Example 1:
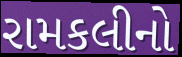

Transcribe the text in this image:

રામકલીનો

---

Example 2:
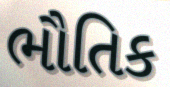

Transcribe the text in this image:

ભૌતિક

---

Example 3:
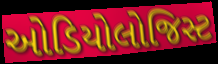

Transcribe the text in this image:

ઓડિયોલોજિસ્ટ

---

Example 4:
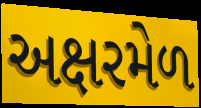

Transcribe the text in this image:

અક્ષરમેળ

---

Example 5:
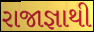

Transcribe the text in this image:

રાજાજ્ઞાથી